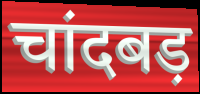
चांदबड़